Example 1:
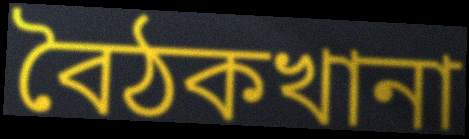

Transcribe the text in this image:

বৈঠকখানা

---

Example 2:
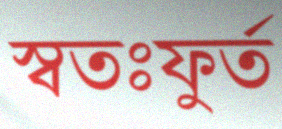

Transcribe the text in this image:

স্বতঃফুর্ত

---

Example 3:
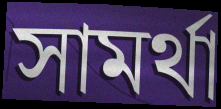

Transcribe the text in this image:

সামর্থা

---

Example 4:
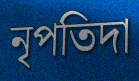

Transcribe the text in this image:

নৃপতিদা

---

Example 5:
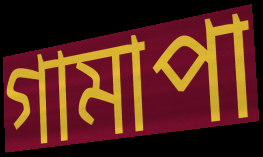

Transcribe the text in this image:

গামাপা